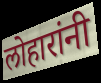
लोहारांनी